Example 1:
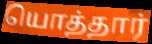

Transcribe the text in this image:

யொத்தார்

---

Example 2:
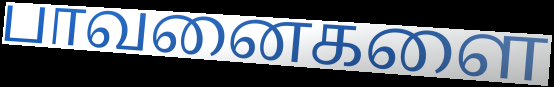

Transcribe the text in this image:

பாவனைகளை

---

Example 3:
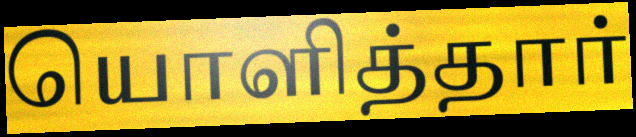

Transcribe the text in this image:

யொளித்தார்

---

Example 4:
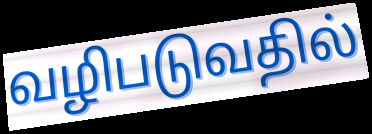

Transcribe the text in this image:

வழிபடுவதில்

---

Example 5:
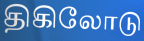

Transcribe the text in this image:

திகிலோடு